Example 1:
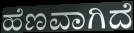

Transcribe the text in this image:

ಹೆಣವಾಗಿದೆ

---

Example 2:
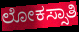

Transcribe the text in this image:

ಲೋಕಸ್ಸಾತಿ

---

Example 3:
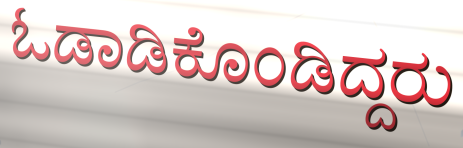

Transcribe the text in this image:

ಓಡಾಡಿಕೊಂಡಿದ್ದರು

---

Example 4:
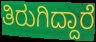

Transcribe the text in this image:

ತಿರುಗಿದ್ದಾರೆ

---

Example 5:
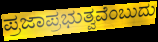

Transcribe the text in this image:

ಪ್ರಜಾಪ್ರಭುತ್ವವೆಂಬುದು